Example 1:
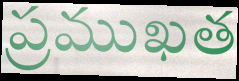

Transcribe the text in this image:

ప్రముఖత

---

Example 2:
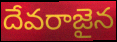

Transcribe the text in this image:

దేవరాజైన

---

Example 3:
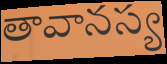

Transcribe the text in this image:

తావానస్య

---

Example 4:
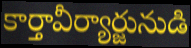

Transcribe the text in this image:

కార్తావీర్యార్జునుడి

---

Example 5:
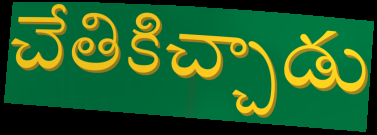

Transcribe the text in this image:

చేతికిచ్చాడు